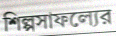
শিল্পসাফল্যের